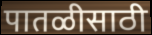
पातळीसाठी